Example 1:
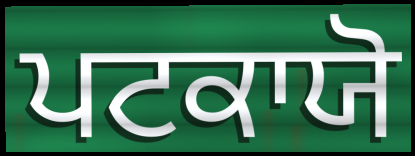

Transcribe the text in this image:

ਪਟਕਾਯੋ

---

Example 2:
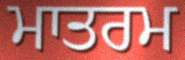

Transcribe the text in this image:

ਮਾਤਰਮ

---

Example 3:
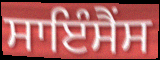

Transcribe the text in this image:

ਸਾਇੰਸੈਂਸ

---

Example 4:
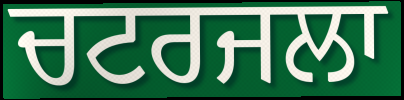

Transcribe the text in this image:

ਚਟਰਜਲਾ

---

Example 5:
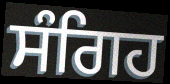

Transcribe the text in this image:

ਸੰਗਿਹ